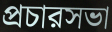
প্রচারসভা